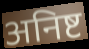
अनिष्ट